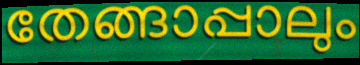
തേങ്ങാപ്പാലും